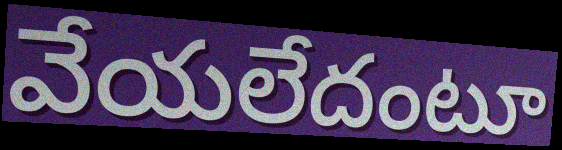
వేయలేదంటూ